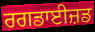
ਰਗਡਾਈਜ਼ਡ